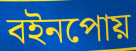
বইনপোয়